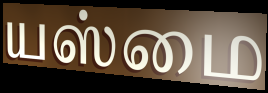
யஸ்மை